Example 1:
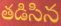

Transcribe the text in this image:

తడిసిన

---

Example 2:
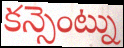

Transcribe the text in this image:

కన్సెంట్ను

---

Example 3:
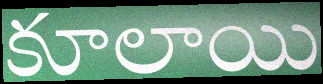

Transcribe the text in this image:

కూలాయి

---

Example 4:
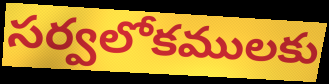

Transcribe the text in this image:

సర్వలోకములకు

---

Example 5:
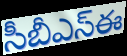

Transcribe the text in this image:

సీబీఎస్ఈ